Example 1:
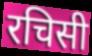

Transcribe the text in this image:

रचिसी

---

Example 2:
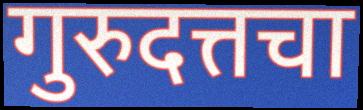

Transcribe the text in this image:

गुरुदत्तचा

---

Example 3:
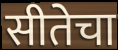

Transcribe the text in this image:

सीतेचा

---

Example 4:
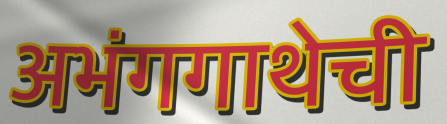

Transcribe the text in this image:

अभंगगाथेची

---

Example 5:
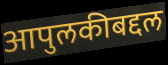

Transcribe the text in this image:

आपुलकीबद्दल